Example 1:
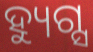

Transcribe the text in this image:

ହ୍ୟୁଗ୍ସ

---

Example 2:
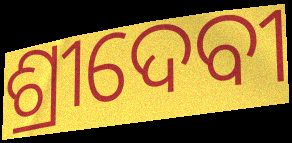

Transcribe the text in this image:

ଶ୍ରୀଦେବୀ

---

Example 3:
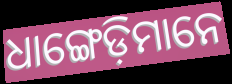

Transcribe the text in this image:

ଧାଙ୍ଗେଡ଼ିମାନେ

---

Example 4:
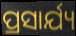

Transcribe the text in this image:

ପ୍ରସାର୍ଯ୍ୟ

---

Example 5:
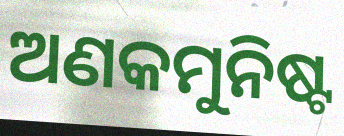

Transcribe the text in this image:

ଅଣକମୁନିଷ୍ଟ